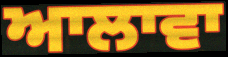
ਆਲਾਵਾ